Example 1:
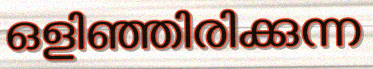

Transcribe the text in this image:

ഒളിഞ്ഞിരിക്കുന്ന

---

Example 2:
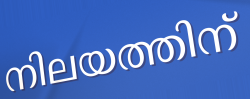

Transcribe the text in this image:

നിലയത്തിന്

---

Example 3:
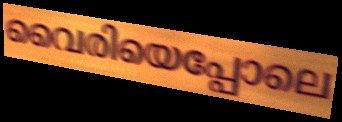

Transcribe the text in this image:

വൈരിയെപ്പോലെ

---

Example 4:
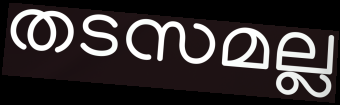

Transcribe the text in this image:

തടസമല്ല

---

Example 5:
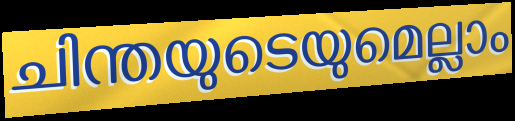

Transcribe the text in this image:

ചിന്തയുടെയുമെല്ലാം